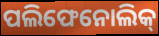
ପଲିଫେନୋଲିକ୍